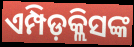
ଏମ୍ପିଡ଼କ୍ଲିସଙ୍କ